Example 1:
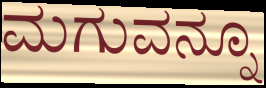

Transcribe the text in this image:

ಮಗುವನ್ನೂ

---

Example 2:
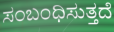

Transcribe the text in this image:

ಸಂಬಂಧಿಸುತ್ತದೆ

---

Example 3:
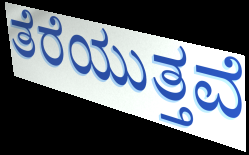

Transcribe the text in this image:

ತೆರೆಯುತ್ತವೆ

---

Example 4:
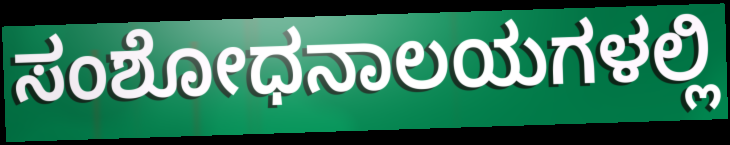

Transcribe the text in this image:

ಸಂಶೋಧನಾಲಯಗಳಲ್ಲಿ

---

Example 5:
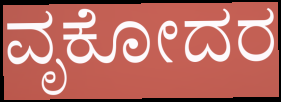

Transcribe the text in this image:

ವೃಕೋದರ